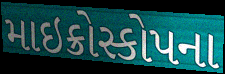
માઇક્રોસ્કોપના